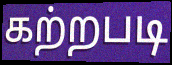
கற்றபடி